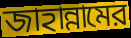
জাহান্নামের